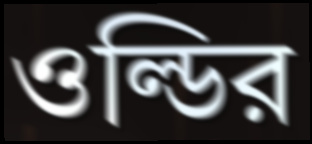
ওল্ডির